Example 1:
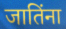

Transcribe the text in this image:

जातिंना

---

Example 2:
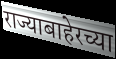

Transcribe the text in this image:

राज्याबाहेरच्या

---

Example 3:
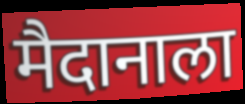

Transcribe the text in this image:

मैदानाला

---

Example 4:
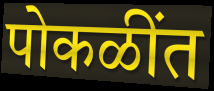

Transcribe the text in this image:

पोकळींत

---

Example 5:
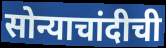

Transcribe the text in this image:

सोन्याचांदीची